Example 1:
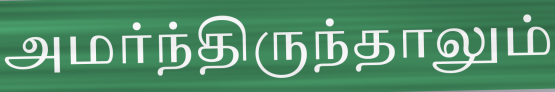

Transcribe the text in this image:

அமர்ந்திருந்தாலும்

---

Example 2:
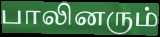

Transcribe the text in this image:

பாலினரும்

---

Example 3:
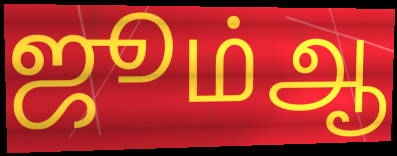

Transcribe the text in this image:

ஜூம்ஆ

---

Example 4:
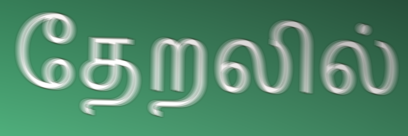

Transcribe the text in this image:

தேறலில்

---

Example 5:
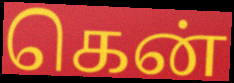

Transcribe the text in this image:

கென்